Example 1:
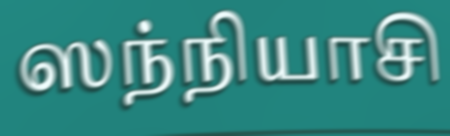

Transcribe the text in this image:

ஸந்நியாசி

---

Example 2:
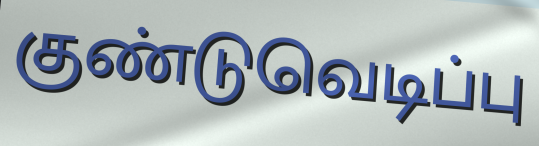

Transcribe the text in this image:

குண்டுவெடிப்பு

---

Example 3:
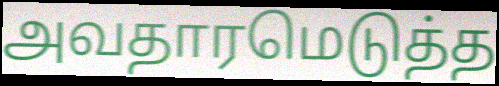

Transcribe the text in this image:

அவதாரமெடுத்த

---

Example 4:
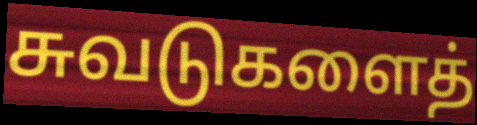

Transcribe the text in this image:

சுவடுகளைத்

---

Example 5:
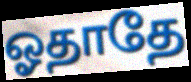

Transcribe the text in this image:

ஓதாதே